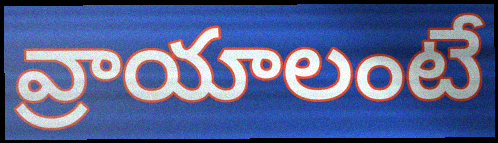
వ్రాయాలంటే